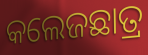
କଲେଜଛାତ୍ର